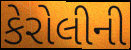
કેરોલીની